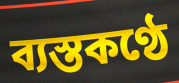
ব্যস্তকণ্ঠে